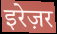
इरेज़र